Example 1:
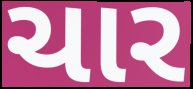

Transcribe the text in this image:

ચાર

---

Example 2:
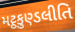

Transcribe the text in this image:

મટ્ઠકુણ્ડલીતિ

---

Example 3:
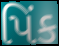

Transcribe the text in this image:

પિંક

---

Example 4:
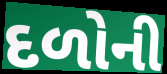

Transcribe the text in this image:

દળોની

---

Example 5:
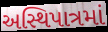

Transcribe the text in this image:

અસ્થિપાત્રમાં